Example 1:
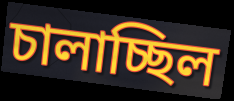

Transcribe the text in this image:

চালাচ্ছিল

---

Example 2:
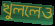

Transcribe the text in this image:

খুললেও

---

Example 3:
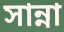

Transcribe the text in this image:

সান্না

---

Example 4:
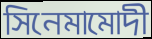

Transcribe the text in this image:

সিনেমামোদী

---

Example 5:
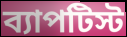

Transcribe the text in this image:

ব্যাপটিস্ট